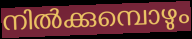
നിൽക്കുമ്പൊഴും